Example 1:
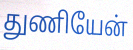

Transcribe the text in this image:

துணியேன்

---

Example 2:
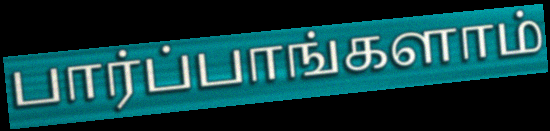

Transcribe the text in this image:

பார்ப்பாங்களாம்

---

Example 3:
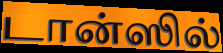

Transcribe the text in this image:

டான்ஸில்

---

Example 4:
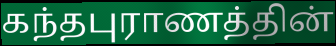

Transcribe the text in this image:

கந்தபுராணத்தின்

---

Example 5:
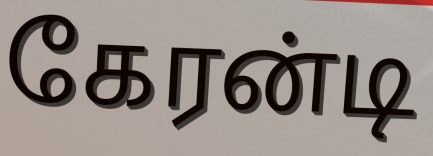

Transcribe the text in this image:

கேரன்டி